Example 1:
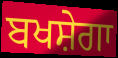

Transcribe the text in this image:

ਬਖਸ਼ੇਗਾ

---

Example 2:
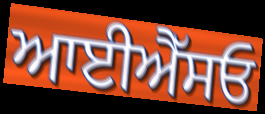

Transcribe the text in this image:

ਆਈਐੱਸਓ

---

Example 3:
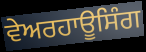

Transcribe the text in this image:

ਵੇਅਰਹਾਊਸਿੰਗ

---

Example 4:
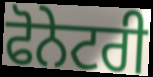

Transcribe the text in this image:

ਫੋਨੇਟਰੀ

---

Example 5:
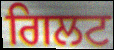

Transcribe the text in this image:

ਗਿਲਟ